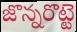
జొన్నరొట్టె